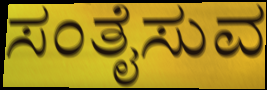
ಸಂತೈಸುವ